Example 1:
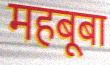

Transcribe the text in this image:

महबूबा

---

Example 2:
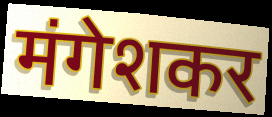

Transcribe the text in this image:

मंगेशकर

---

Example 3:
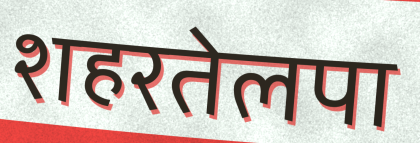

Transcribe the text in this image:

शहरतेलपा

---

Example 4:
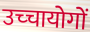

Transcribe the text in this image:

उच्‍चायोगों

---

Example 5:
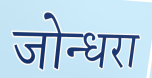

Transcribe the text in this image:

जोन्धरा